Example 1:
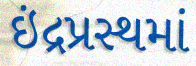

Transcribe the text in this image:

ઇંદ્રપ્રસ્થમાં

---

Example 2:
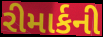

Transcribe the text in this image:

રીમાર્કની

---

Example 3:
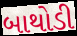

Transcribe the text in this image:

બાથોડી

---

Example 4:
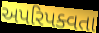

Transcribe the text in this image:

અપરિપક્વતા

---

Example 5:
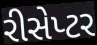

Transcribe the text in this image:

રીસેપ્ટર